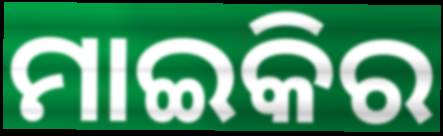
ମାଇକିର